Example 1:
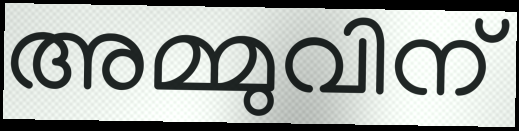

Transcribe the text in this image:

അമ്മുവിന്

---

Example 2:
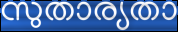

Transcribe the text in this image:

സുതാര്യതാ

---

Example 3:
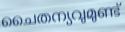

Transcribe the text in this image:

ചൈതന്യവുമുണ്ട്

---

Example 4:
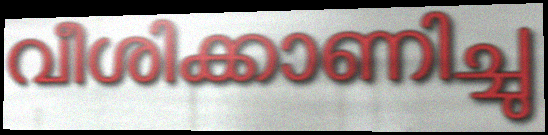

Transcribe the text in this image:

വീശിക്കാണിച്ചു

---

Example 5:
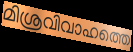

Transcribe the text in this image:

മിശ്രവിവാഹത്തെ